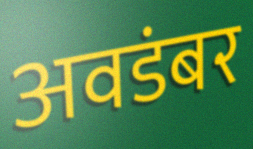
अवडंबर